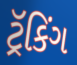
ટ્રૅકિંગ